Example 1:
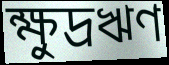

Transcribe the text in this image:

ক্ষুদ্রঋণ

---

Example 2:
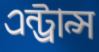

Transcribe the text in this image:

এন্ট্রান্স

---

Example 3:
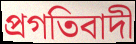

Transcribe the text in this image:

প্রগতিবাদী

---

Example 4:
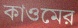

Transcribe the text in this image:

কাওমের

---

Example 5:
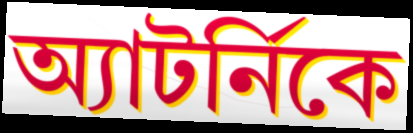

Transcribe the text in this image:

অ্যাটর্নিকে